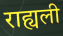
राह्यली